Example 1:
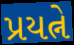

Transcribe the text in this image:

પ્રયત્ને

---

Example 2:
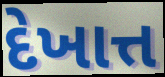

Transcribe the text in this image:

દેખાત્ત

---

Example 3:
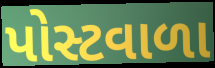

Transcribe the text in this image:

પોસ્ટવાળા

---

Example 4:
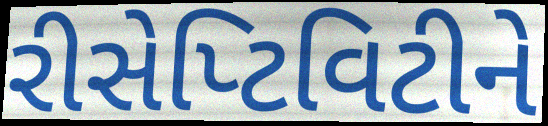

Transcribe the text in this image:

રીસેપ્ટિવિટીને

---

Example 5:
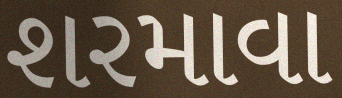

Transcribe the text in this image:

શરમાવા